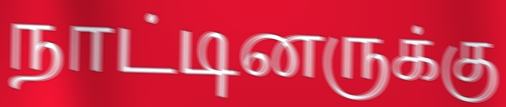
நாட்டினருக்கு